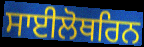
ਸਾਈਲੋਥਰਿਨ